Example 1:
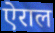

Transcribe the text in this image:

ऐराल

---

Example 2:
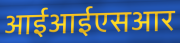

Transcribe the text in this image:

आईआईएसआर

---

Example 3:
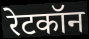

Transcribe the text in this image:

रेटकॉन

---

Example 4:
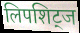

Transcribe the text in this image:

लिपशिट्ज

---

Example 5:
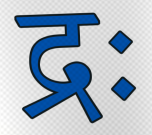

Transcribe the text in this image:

द्रः